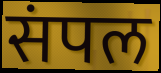
संपल